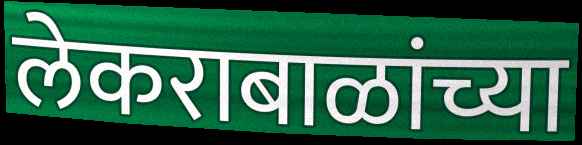
लेकराबाळांच्या